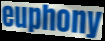
euphony